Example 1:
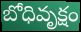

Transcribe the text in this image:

బోధివృక్షం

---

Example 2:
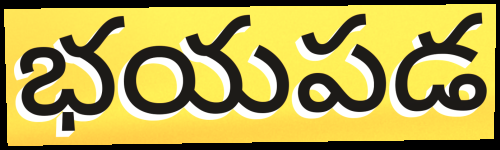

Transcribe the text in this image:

భయపడ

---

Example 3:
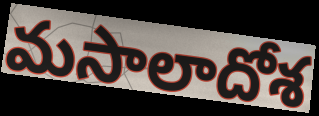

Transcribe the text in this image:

మసాలాదోశ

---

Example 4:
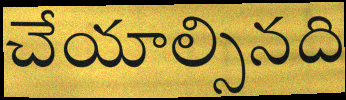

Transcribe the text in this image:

చేయాల్సినది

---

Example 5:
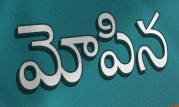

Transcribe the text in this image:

మోపిన